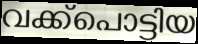
വക്ക്പൊട്ടിയ